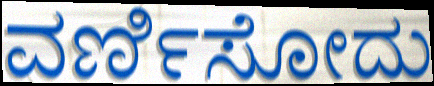
ವರ್ಣಿಸೋದು